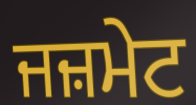
ਜਜ਼ਮੇਟ